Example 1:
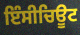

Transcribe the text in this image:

ਇੰਸੀਚਿਊਟ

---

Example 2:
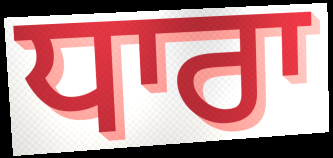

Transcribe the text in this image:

ਧਾਰਾ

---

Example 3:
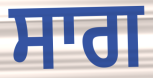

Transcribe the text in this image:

ਸਾਗ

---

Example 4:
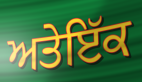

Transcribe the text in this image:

ਅਤੇਇੱਕ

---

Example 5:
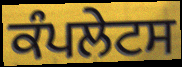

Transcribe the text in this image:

ਕੰਪਲੇਟਸ